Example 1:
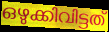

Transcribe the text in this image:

ഒഴുക്കിവിട്ടത്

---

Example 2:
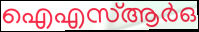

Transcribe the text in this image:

ഐഎസ്ആർഒ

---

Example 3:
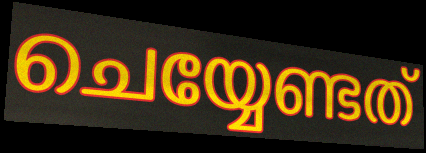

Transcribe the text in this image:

ചെയ്യേണ്ടത്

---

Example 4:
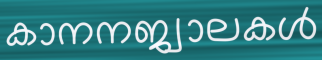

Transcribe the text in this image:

കാനനജ്വാലകൾ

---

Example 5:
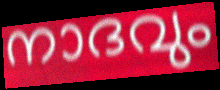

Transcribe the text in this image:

നാദവും